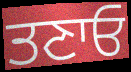
ਤਣਾਓ